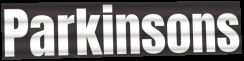
Parkinsons